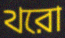
থরো